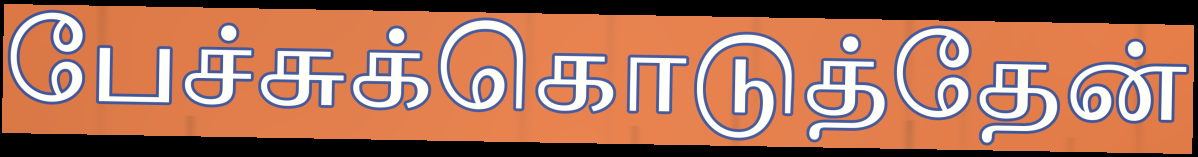
பேச்சுக்கொடுத்தேன்